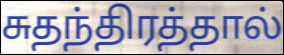
சுதந்திரத்தால்